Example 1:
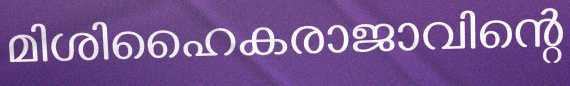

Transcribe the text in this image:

മിശിഹൈകരാജാവിന്റെ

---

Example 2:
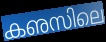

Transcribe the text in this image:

കഌസിലെ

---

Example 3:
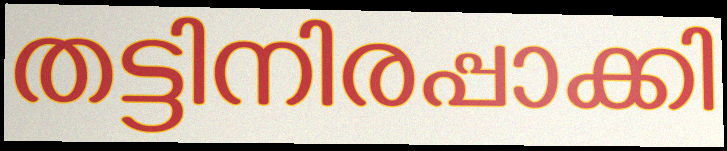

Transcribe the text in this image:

തട്ടിനിരപ്പാക്കി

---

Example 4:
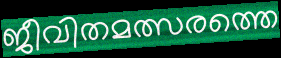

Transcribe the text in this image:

ജീവിതമത്സരത്തെ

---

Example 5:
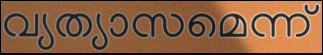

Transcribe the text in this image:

വ്യത്യാസമെന്ന്